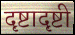
दृष्टादृष्टी